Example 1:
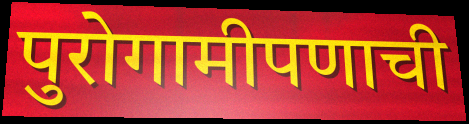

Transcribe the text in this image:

पुरोगामीपणाची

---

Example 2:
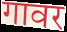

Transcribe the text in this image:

गावर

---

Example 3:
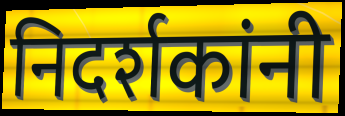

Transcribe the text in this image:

निदर्शकांनी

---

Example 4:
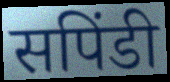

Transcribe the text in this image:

सपिंडी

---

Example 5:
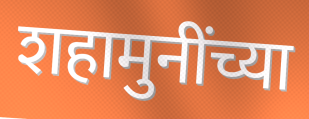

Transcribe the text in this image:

शहामुनींच्या